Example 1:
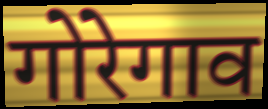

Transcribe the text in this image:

गोरेगाव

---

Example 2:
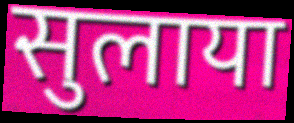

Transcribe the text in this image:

सुलाया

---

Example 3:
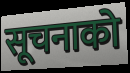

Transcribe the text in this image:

सूचनाको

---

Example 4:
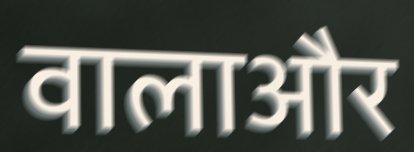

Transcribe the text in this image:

वालाऔर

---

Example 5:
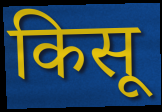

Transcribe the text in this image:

किसू